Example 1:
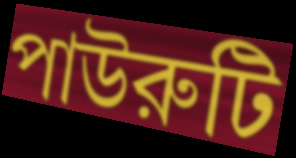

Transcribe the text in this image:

পাউরুটি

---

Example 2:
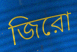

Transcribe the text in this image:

জিরো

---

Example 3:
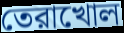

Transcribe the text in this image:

তেরাখোল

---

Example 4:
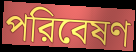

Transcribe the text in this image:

পরিবেষণ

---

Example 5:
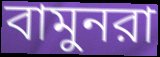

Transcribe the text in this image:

বামুনরা